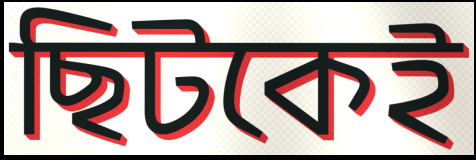
ছিটকেই